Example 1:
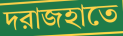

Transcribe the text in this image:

দরাজহাতে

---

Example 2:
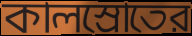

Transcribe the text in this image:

কালস্রোতের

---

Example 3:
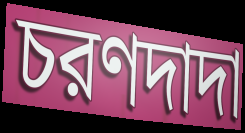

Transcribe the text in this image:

চরণদাদা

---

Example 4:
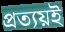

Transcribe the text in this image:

প্রত্যয়ই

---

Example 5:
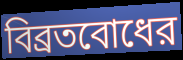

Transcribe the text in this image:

বিব্রতবোধের